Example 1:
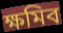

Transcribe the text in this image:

ক্ষমিব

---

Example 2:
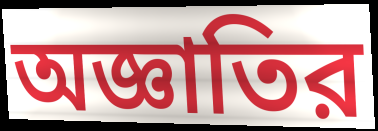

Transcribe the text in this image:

অজ্ঞাতির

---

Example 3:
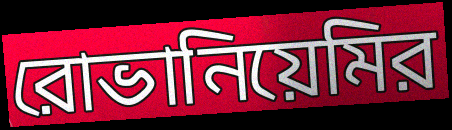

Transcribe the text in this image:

রোভানিয়েমির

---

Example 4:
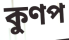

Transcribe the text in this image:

কুণপ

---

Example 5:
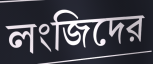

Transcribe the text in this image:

লংজিদের